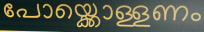
പോയ്ക്കൊള്ളണം